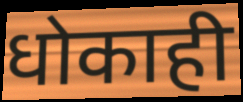
धोकाही